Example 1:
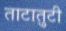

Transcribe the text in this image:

ताटातुटी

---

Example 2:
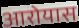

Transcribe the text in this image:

आरोयास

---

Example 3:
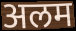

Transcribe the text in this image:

अलम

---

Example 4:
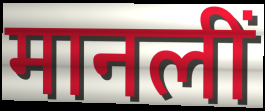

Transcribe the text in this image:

मानलीं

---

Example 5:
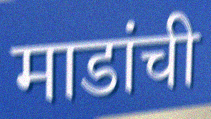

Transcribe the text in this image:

माडांची